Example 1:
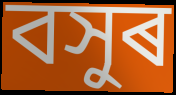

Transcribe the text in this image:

বসুৰ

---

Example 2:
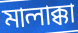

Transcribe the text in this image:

মালাক্কা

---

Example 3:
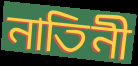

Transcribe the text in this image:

নাতিনী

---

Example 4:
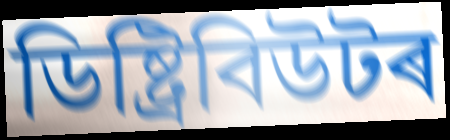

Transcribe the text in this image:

ডিষ্ট্ৰিবিউটৰ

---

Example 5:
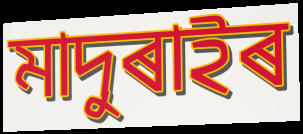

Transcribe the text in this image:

মাদুৰাইৰ